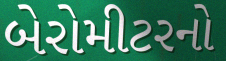
બેરોમીટરનો